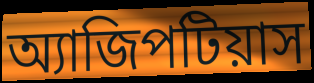
অ্যাজিপটিয়াস